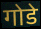
गोडे